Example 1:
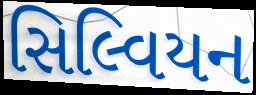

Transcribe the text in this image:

સિલ્વિયન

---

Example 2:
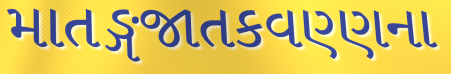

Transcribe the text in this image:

માતઙ્ગજાતકવણ્ણના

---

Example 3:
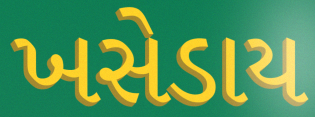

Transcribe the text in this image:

ખસેડાય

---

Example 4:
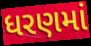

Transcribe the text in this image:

ધરણમાં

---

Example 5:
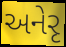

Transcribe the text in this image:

અનેરૃ